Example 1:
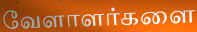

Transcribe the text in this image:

வேளாளர்களை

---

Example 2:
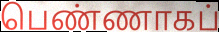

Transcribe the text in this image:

பெண்ணாகப்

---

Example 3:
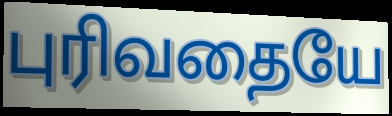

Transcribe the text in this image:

புரிவதையே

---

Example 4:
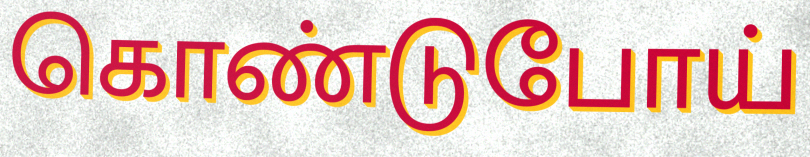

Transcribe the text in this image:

கொண்டுபோய்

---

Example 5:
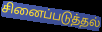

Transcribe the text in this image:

சினைப்படுத்தல்